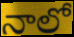
నాలో